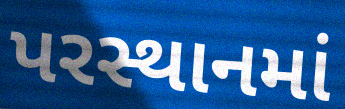
પરસ્થાનમાં